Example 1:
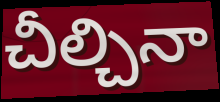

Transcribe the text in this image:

చీల్చినా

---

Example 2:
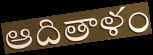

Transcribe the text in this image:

ఆదితాళం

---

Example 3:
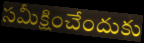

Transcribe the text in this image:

సమీక్షించేందుకు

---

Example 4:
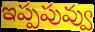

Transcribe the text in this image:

ఇప్పపువ్వు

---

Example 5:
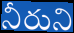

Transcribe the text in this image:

నీరుని